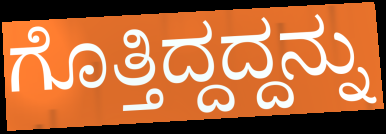
ಗೊತ್ತಿದ್ದದ್ದನ್ನು